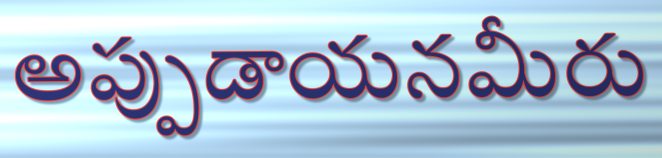
అప్పుడాయనమీరు